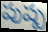
పుష్ప